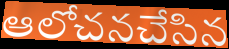
ఆలోచనచేసిన